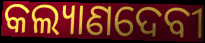
କଲ୍ୟାଣଦେବୀ